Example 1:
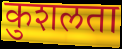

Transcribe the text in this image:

कुशलता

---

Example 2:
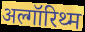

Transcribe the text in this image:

अल्गॉरिथ्म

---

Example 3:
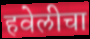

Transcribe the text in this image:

हवेलीचा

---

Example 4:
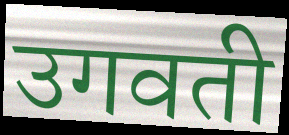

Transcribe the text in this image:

उगवती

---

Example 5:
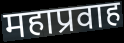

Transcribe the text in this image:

महाप्रवाह